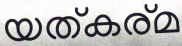
യത്കര്മ